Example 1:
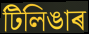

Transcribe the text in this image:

টিলিঙাৰ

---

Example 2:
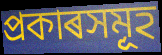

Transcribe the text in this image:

প্ৰকাৰসমূহ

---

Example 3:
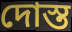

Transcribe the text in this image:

দোস্ত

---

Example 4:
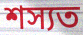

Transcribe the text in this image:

শস্যত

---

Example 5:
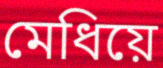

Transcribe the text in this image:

মেধিয়ে